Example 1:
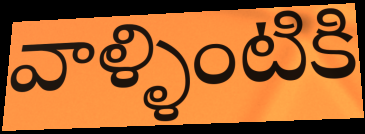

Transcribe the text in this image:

వాళ్ళింటికి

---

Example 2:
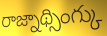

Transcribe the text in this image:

రాజ్నాథ్సింగ్కు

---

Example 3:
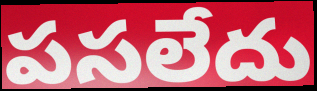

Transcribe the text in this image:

పసలేదు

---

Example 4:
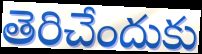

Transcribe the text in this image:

తెరిచేందుకు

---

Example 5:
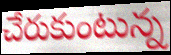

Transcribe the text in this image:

చేరుకుంటున్న